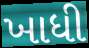
ખાધી